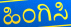
ಹಿಂಗಿಸಿ